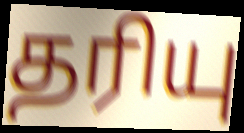
தரியு